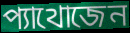
প্যাথোজেন